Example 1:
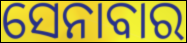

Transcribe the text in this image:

ସେନାବାର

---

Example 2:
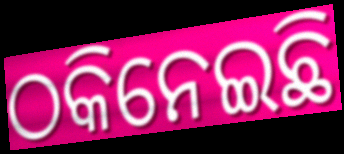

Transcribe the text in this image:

ଠକିନେଇଛି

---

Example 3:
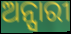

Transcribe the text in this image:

ଅନ୍ସାରୀ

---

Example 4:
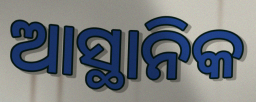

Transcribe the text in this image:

ଆସ୍ଥାନିକ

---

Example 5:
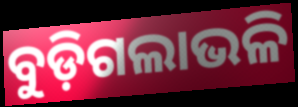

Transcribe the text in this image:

ବୁଡ଼ିଗଲାଭଳି